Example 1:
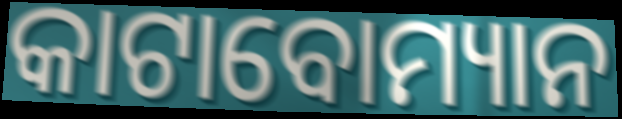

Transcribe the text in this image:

କାଟାବୋମ୍ୟାନ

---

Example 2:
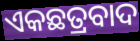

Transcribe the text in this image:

ଏକଛତ୍ରବାଦ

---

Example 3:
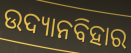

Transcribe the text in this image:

ଉଦ୍ୟାନବିହାର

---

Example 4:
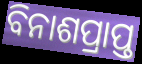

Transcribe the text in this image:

ବିନାଶପ୍ରାପ୍ତ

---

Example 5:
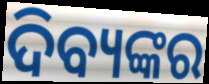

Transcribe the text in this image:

ଦିବ୍ୟଙ୍କର